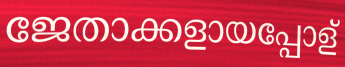
ജേതാക്കളായപ്പോള്